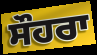
ਸੌਹਰਾ